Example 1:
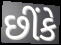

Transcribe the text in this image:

છીંકે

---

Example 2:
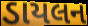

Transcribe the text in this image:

ડાયલન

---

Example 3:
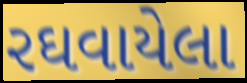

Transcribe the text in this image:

રઘવાયેલા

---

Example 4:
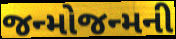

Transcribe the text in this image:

જન્મોજન્મની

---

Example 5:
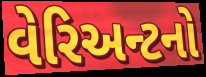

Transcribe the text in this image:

વેરિઅન્ટનો